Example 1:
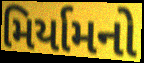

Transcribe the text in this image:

મિર્યામનો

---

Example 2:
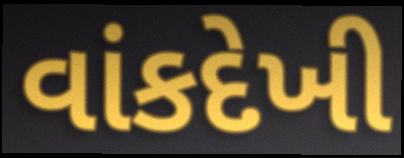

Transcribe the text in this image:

વાંકદેખી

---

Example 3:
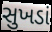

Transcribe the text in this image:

સુખડાં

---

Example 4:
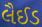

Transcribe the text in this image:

લૈઈડ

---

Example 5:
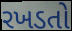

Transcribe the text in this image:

રખડતો